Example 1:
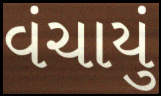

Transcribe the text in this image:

વંચાયું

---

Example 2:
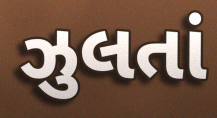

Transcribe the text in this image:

ઝુલતાં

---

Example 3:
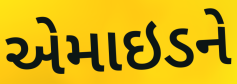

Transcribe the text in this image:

એમાઇડને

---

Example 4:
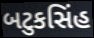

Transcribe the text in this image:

બટુકસિંહ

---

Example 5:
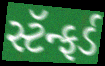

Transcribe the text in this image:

સ્ટૅન્ફર્ડ